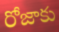
రోజాకు